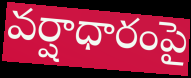
వర్షాధారంపై